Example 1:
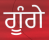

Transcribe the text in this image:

ਗੂੰਗੇ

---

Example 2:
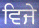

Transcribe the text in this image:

ਵਿਜੇ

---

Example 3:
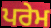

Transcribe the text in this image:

ਪਰੇਮ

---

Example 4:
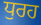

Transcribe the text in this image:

ਧੁਰਹ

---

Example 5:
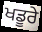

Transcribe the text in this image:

ਖਡੂਰੇ